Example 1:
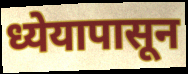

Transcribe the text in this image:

ध्येयापासून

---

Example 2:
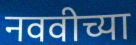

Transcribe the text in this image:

नववीच्या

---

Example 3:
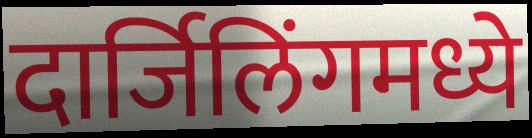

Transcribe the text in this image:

दार्जिलिंगमध्ये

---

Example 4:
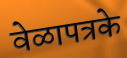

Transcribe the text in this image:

वेळापत्रके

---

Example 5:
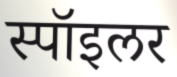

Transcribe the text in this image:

स्पॉइलर